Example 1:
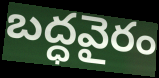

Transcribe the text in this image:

బద్ధవైరం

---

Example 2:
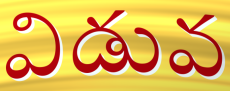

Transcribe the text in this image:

విడువ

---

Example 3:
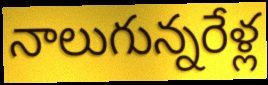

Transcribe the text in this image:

నాలుగున్నరేళ్ల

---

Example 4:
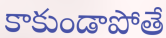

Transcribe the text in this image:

కాకుండాపోతే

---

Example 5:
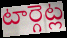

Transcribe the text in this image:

టార్గెట్ల